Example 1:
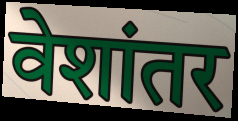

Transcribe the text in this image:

वेशांतर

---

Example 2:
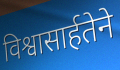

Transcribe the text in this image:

विश्वासार्हतेने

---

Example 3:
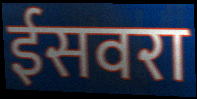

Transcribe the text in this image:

ईसवरा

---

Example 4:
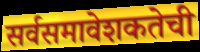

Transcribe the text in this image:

सर्वसमावेशकतेची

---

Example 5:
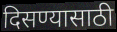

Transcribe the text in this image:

दिसण्यासाठी